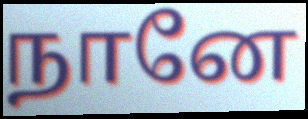
நானே